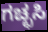
ಗಚ್ಛಸಿ